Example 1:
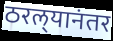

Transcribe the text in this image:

ठरल्यानंतर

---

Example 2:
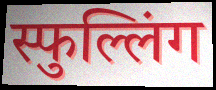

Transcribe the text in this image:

स्फुल्लिंग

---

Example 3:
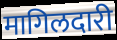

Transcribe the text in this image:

मागिलदारी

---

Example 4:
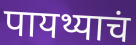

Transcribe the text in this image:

पायथ्याचं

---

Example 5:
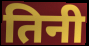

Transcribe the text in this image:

तिनी